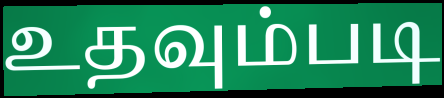
உதவும்படி